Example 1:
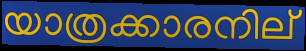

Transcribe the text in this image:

യാത്രക്കാരനില്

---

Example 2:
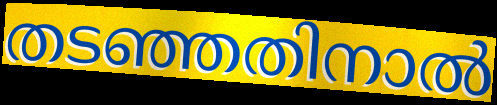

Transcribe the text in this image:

തടഞ്ഞതിനാൽ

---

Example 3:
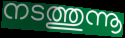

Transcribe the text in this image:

നടത്തുന്നൂ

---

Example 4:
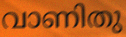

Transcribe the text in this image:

വാണിതു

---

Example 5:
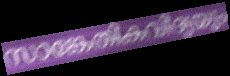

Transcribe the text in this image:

സാങ്കേതികവിദ്യയും